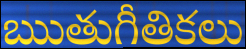
ఋతుగీతికలు